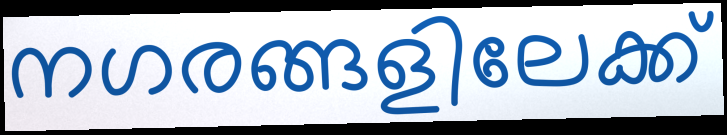
നഗരങ്ങളിലേക്ക്